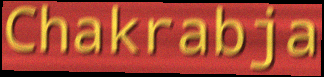
Chakrabja